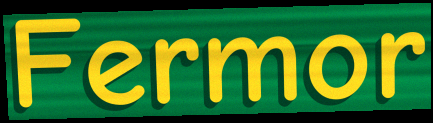
Fermor